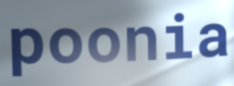
poonia